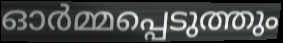
ഓർമ്മപ്പെടുത്തും